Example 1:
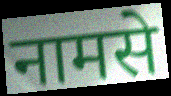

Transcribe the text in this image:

नामसे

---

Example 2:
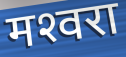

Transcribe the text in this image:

मश्वरा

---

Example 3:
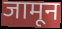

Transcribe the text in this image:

जामून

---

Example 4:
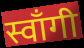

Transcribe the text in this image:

स्वाँगी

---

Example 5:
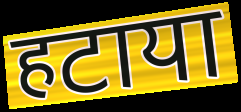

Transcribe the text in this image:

हटाया